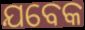
ଯବେକ